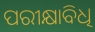
ପରୀକ୍ଷାବିଧି